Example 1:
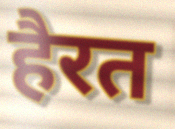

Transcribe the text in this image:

हैरत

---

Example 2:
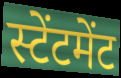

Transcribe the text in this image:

स्टेंटमेंट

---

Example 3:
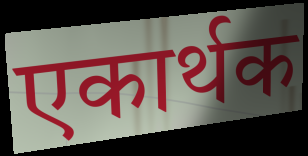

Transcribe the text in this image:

एकार्थक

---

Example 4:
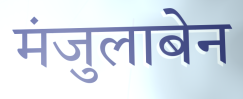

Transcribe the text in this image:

मंजुलाबेन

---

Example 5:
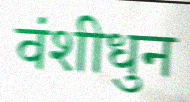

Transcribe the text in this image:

वंशीधुन